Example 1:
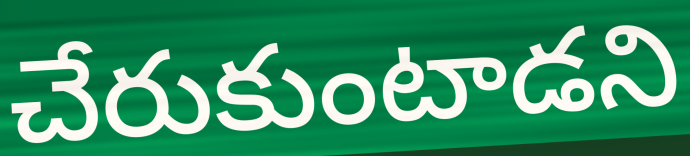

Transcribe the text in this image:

చేరుకుంటాడని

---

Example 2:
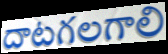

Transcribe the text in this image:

దాటగలగాలి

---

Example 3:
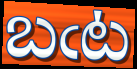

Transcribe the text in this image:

బఁట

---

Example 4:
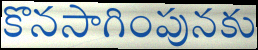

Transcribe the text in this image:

కొనసాగింపునకు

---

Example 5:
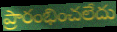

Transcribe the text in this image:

ప్రారంభించలేదు